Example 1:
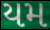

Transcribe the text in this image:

યમ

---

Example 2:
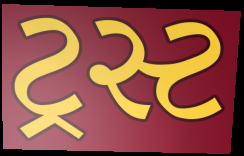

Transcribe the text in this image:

ટ્રસ્ટ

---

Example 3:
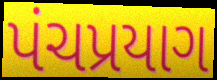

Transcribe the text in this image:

પંચપ્રયાગ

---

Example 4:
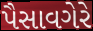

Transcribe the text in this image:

પૈસાવગેરે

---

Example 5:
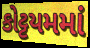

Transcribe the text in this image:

કોટ્ટયમમાં